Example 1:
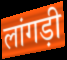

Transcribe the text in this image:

लांगड़ी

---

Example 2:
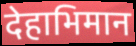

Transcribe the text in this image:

देहाभिमान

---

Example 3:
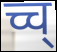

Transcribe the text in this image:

च्च्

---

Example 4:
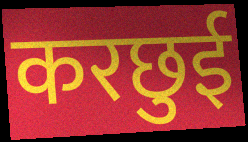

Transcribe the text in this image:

करछुई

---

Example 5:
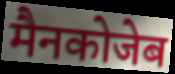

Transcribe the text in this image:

मैनकोजेब